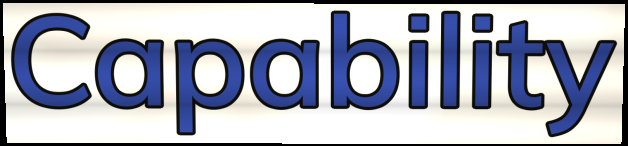
Capability